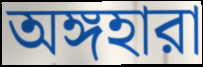
অঙ্গহারা